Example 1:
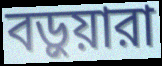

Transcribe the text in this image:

বড়ুয়ারা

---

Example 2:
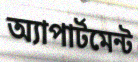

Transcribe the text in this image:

অ্যাপার্টমেন্ট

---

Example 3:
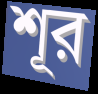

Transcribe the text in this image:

শূর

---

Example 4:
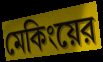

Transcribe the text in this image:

মেকিংয়ের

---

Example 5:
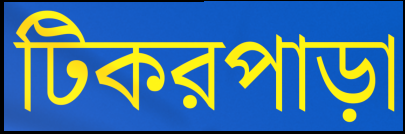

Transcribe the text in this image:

টিকরপাড়া